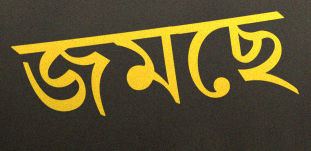
জমছে